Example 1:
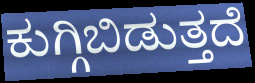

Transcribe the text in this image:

ಕುಗ್ಗಿಬಿಡುತ್ತದೆ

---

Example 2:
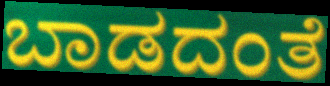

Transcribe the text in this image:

ಬಾಡದಂತೆ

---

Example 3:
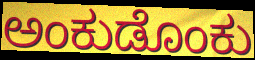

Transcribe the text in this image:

ಅಂಕುಡೊಂಕು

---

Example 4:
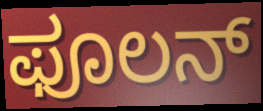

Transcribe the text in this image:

ಫೂಲನ್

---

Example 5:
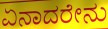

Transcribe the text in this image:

ಏನಾದರೇನು